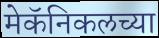
मेकॅनिकलच्या